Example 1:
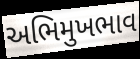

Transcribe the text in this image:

અભિમુખભાવ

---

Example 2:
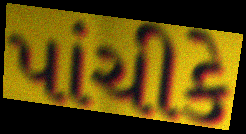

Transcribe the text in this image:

પાંચીકે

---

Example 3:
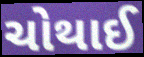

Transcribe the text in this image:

ચોથાઈ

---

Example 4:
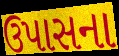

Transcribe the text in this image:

ઉપાસના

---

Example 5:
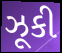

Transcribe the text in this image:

ઝૂકી